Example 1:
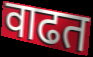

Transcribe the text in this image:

वाढत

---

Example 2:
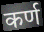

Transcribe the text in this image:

कर्ण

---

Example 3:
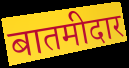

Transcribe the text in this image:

बातमीदार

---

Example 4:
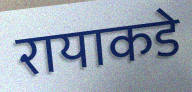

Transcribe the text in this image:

रायाकडे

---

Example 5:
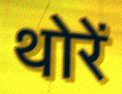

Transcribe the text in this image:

थोरें